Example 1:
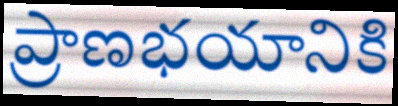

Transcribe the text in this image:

ప్రాణభయానికి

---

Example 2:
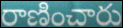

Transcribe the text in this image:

రాణించారు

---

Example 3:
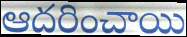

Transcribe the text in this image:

ఆదరించాయి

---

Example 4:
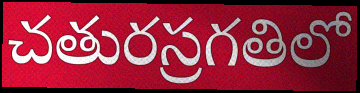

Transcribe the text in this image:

చతురస్రగతిలో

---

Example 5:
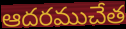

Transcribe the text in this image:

ఆదరముచేత